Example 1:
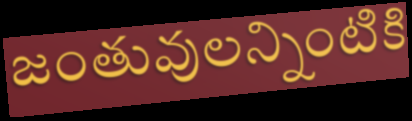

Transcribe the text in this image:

జంతువులన్నింటికి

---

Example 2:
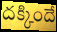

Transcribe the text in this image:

దక్కిందే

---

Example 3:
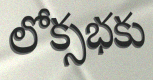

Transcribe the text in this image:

లోక్సభకు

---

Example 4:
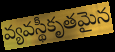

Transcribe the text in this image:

వ్యవస్థీకృతమైన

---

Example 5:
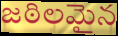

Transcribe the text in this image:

జఠిలమైన